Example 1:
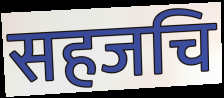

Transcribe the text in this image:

सहजचि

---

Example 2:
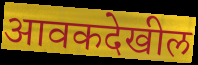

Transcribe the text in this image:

आवकदेखील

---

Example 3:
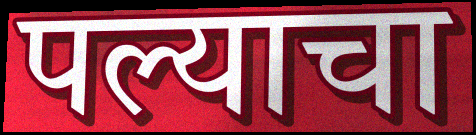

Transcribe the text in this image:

पल्याचा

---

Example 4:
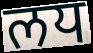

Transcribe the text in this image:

लय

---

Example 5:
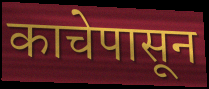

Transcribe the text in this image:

काचेपासून